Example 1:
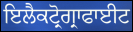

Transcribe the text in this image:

ਇਲੈਕਟ੍ਰੋਗ੍ਰਾਫਾਈਟ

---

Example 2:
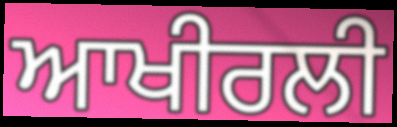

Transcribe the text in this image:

ਆਖੀਰਲੀ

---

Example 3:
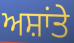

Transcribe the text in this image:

ਅਸ਼ਾਂਤੇ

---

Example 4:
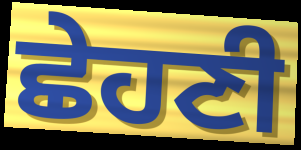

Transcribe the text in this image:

ਛੇਹਣੀ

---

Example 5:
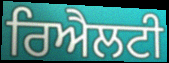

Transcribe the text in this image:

ਰਿਐਲਟੀ